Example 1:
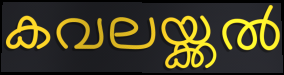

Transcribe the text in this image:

കവലയ്ക്കൽ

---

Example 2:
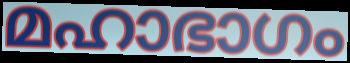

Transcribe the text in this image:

മഹാഭാഗം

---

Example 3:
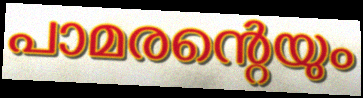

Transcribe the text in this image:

പാമരന്റെയും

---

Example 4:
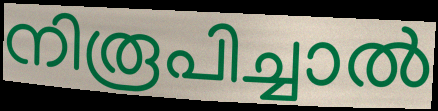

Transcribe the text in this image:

നിരൂപിച്ചാൽ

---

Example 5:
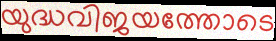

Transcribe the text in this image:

യുദ്ധവിജയത്തോടെ